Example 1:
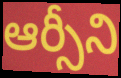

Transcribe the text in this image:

ఆర్సీని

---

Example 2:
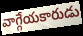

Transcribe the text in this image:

వాగ్గేయకారుడు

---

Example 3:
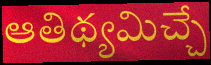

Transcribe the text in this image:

ఆతిథ్యమిచ్చే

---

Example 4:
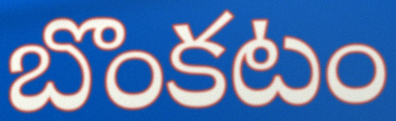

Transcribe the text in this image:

బొంకటం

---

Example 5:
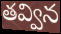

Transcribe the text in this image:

తవ్విన